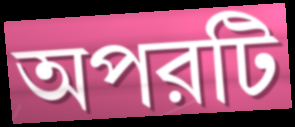
অপরটি